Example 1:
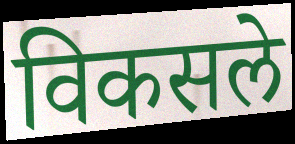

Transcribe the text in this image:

विकसले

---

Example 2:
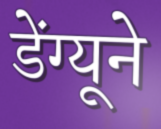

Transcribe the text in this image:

डेंग्यूने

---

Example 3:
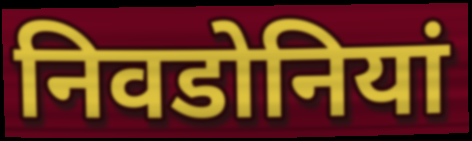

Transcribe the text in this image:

निवडोनियां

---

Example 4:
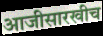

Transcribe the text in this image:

आजीसारखीच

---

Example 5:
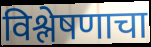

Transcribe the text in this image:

विश्लेषणाचा